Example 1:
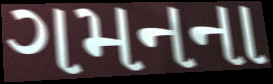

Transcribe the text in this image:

ગમનના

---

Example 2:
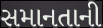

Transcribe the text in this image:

સમાનતાની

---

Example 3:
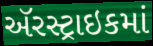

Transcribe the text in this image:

ઍરસ્ટ્રાઇકમાં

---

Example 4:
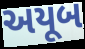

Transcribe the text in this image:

અયૂબ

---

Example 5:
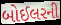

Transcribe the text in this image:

બોઈલરની